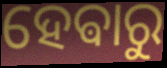
ହେଵାରୁ